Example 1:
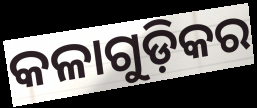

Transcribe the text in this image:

କଳାଗୁଡ଼ିକର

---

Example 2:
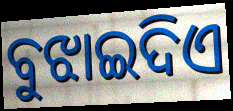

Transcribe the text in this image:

ବୁଝାଇଦିଏ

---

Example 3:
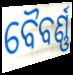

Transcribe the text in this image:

ବୈବର୍ଣ୍ଣ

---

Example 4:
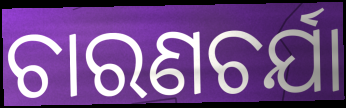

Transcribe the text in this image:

ଚାରଣଚର୍ଯା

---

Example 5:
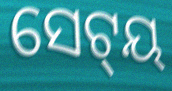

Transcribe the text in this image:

ସେଟ୍‌ୟ